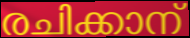
രചിക്കാന്